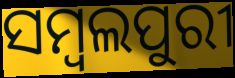
ସମ୍ବଲପୁରୀ